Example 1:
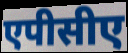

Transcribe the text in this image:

एपीसीए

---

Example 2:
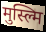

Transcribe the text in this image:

मुस्ल्मि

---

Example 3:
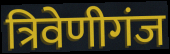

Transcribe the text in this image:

त्रिवेणीगंज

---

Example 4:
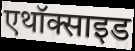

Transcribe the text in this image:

एथॉक्साइड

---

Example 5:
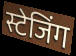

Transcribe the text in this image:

स्टेजिंग